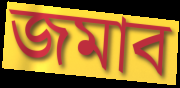
জমাব